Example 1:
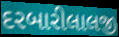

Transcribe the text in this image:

દરબારીલાલજી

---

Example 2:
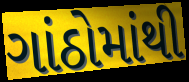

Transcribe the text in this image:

ગાંઠોમાંથી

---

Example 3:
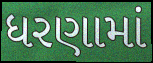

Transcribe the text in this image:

ધરણામાં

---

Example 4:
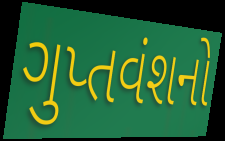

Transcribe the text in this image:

ગુપ્તવંશનો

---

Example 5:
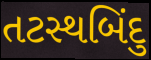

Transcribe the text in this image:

તટસ્થબિંદુ